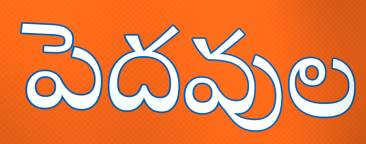
పెదవుల